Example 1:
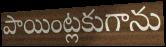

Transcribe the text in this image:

పాయింట్లకుగాను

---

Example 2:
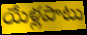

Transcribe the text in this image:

యేళ్లపాటు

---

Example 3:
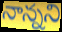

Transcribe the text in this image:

నాన్నని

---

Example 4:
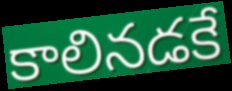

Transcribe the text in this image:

కాలినడకే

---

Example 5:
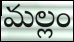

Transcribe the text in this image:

మల్లం